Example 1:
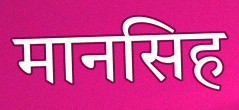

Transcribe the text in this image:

मानसिह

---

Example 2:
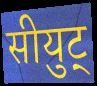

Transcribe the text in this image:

सीयुट्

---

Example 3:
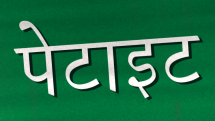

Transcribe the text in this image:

पेटाइट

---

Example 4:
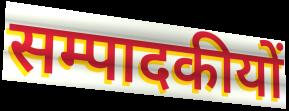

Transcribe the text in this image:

सम्पादकीयों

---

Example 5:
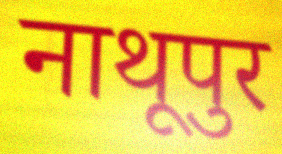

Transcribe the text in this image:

नाथूपुर